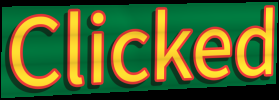
Clicked